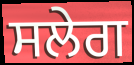
ਸਲੇਗ